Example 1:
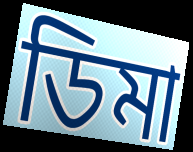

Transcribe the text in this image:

ডিমা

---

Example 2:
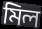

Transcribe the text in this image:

মিল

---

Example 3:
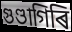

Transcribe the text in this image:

গুণ্ডাগিৰি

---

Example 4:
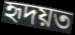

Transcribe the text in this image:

হৃদয়ত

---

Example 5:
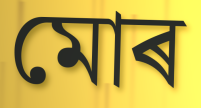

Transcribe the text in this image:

মোৰ